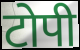
टोपी